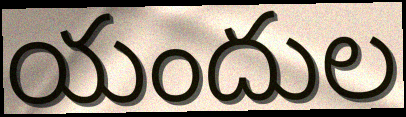
యందుల